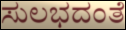
ಸುಲಭದಂತೆ